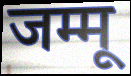
जम्मू